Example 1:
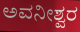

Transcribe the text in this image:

ಅವನೀಶ್ವರ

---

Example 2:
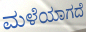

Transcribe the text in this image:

ಮಳೆಯಾಗದೆ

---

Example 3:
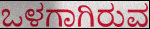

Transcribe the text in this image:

ಒಳಗಾಗಿರುವ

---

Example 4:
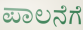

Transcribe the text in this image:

ಪಾಲನೆಗೆ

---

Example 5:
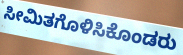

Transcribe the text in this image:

ಸೀಮಿತಗೊಳಿಸಿಕೊಂಡರು